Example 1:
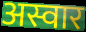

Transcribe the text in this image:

अस्वार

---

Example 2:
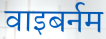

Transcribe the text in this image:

वाइबर्नम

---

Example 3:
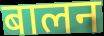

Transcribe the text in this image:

बालन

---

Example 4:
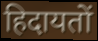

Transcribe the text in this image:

हिदायतों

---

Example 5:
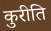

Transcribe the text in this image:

कुरीति